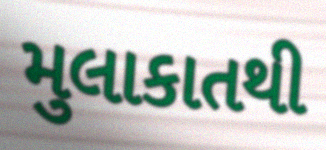
મુલાકાતથી